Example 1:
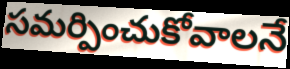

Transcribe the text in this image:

సమర్పించుకోవాలనే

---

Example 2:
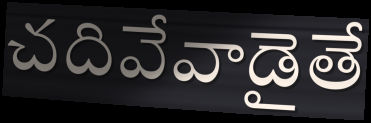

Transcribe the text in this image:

చదివేవాడైతే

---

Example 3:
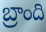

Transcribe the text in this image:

బ్రాంది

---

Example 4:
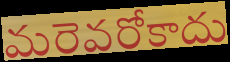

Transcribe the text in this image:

మరెవరోకాదు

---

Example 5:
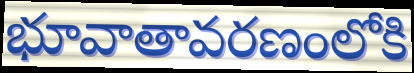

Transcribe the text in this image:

భూవాతావరణంలోకి